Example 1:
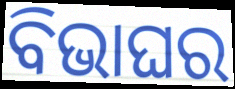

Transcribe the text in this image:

ବିଭାଘର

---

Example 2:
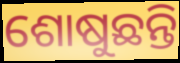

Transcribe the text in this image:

ଶୋଷୁଛନ୍ତି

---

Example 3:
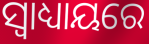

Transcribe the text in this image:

ସ୍ଵାଧ୍ୟାୟରେ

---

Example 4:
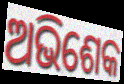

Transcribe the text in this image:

ଅଭିଶେକ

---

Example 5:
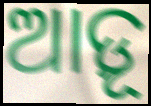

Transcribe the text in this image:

ଆଡ଼ୂ